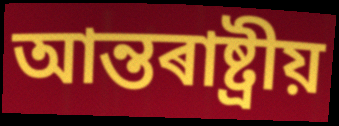
আন্তৰাষ্ট্ৰীয়